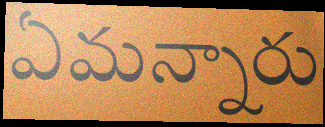
ఏమన్నారు